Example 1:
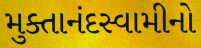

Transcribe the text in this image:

મુક્તાનંદસ્વામીનો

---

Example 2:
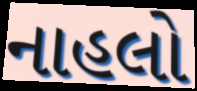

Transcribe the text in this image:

નાહલો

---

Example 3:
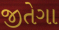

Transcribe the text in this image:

જીતેગા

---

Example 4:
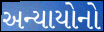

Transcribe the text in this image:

અન્યાયોનો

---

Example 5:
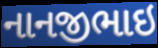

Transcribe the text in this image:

નાનજીભાઇ